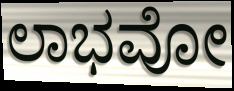
ಲಾಭವೋ